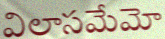
విలాసమేమో